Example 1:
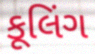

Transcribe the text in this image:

કૂલિંગ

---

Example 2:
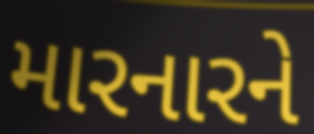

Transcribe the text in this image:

મારનારને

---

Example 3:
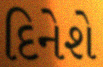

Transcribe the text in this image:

દિનેશે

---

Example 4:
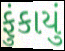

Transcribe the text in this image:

ફુંકાયું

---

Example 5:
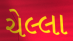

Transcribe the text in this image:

ચેલ્લા